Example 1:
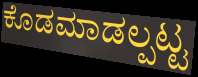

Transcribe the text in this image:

ಕೊಡಮಾಡಲ್ಪಟ್ಟ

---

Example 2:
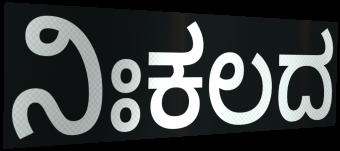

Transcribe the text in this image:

ನಿಃಕಲದ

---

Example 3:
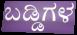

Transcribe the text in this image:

ಬಡ್ಡಿಗಳ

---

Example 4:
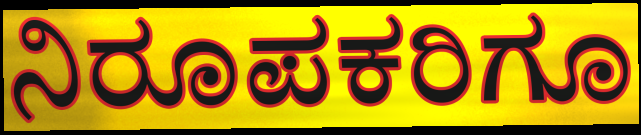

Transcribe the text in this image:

ನಿರೂಪಕರಿಗೂ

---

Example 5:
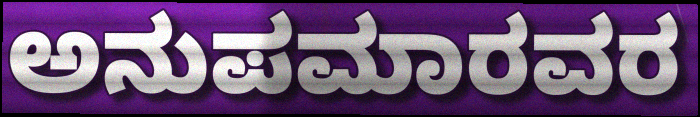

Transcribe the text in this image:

ಅನುಪಮಾರವರ